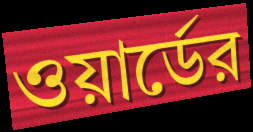
ওয়ার্ডের